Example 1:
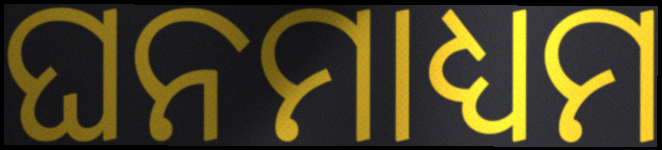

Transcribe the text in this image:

ଘନମାଧ୍ୟମ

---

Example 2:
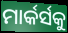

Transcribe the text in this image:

ମାର୍କର୍ସକୁ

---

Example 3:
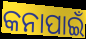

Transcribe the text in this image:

କନାପାଇଁ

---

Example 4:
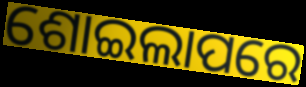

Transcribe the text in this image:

ଶୋଇଲାପରେ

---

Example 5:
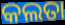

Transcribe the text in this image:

କଲତା